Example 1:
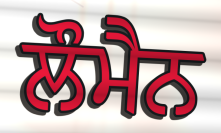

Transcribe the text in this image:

ਲੌਮੈਨ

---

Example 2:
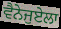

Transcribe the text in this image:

ਵੈਨੇਜੁਏਲਾ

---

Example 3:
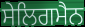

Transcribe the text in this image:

ਸੇਲਿਗਮੈਨ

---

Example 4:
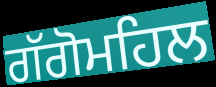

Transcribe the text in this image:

ਗੱਗੋਮਹਿਲ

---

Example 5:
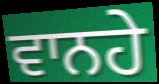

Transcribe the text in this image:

ਵਾਨਹੇ